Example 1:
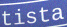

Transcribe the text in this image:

tista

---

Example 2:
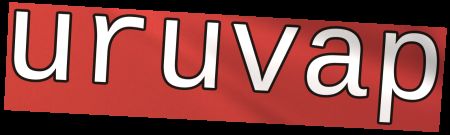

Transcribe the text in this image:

uruvap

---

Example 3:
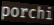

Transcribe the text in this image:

porchi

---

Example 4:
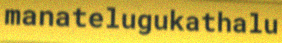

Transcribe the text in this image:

manatelugukathalu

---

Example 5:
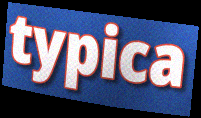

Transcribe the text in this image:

typica